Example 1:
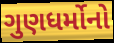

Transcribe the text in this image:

ગુણધર્મોનો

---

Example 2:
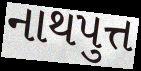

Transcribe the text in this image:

નાથપુત્ત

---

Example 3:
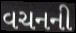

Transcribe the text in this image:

વચનની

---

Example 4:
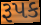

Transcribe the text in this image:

રૂપક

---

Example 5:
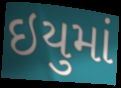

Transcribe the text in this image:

ઇયુમાં